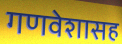
गणवेशासह